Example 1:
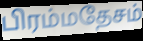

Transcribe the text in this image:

பிரம்மதேசம்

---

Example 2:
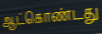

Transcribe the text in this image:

ஆட்கொண்டது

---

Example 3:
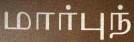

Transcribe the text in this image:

மார்புந்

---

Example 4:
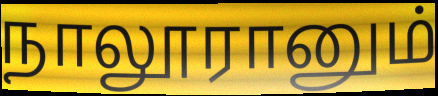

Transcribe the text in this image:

நாலூரானும்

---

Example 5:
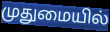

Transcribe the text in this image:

முதுமையில்